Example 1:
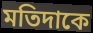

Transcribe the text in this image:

মতিদাকে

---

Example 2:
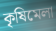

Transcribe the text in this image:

কৃষিমেলা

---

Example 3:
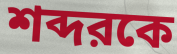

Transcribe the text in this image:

শব্দরকে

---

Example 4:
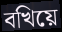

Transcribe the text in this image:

বখিয়ে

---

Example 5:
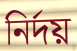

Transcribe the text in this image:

নির্দয়